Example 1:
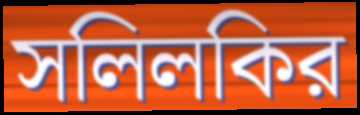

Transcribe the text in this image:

সলিলকির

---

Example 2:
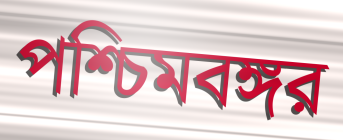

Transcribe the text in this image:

পশ্চিমবঙ্গর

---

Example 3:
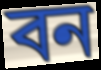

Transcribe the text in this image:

বন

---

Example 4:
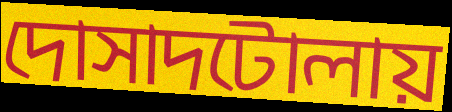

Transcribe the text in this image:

দোসাদটোলায়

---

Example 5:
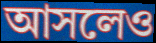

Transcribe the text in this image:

আসলেও